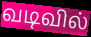
வடிவில்